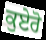
ਕੁਏਰੋ